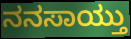
ನನಸಾಯ್ತು